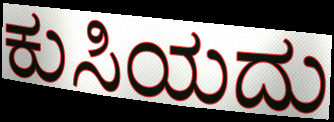
ಕುಸಿಯದು